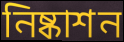
নিষ্কাশন